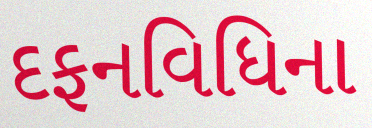
દફનવિધિના